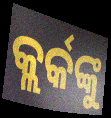
କ୍ଲର୍କଙ୍କୁ